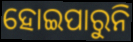
ହୋଇପାରୁନି